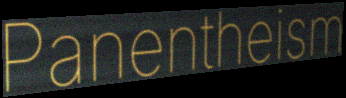
Panentheism